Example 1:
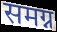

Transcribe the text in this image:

समग्न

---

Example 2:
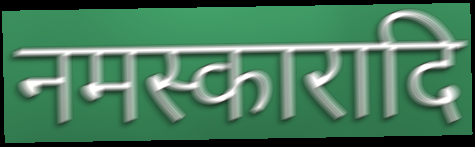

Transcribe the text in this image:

नमस्कारादि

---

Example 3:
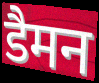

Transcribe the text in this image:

डैमन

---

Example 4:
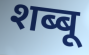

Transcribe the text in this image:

शब्बू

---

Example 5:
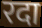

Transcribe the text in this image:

रदा